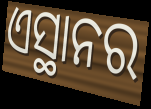
ଏସ୍ଥାନର